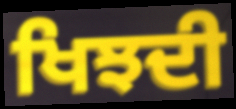
ਖਿਝਦੀ